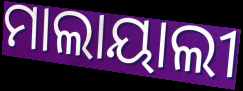
ମାଲାୟାଲୀ